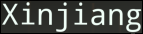
Xinjiang